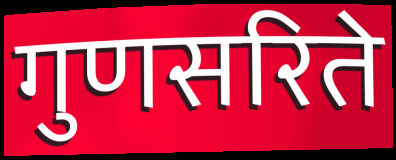
गुणसरिते